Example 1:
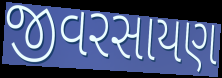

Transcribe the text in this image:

જીવરસાયણ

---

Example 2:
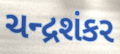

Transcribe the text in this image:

ચન્દ્રશંકર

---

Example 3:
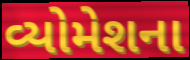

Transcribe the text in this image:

વ્યોમેશના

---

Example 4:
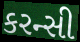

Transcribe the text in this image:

કરન્સી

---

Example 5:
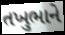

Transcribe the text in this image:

તખુભાને